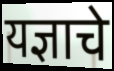
यज्ञाचे